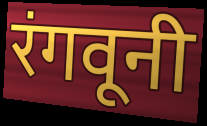
रंगवूनी